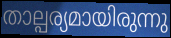
താല്പര്യമായിരുന്നു